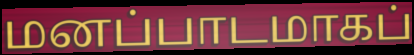
மனப்பாடமாகப்